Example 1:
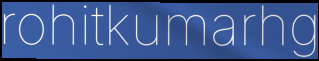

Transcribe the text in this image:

rohitkumarhg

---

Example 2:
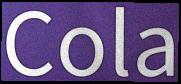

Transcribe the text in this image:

Cola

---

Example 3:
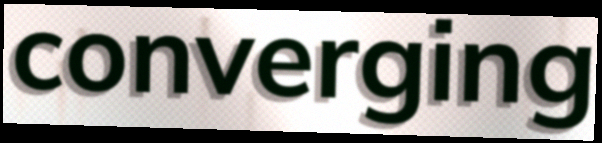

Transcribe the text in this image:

converging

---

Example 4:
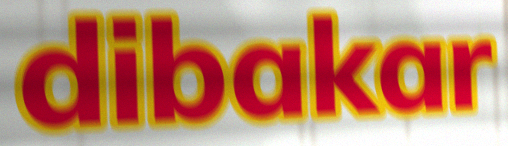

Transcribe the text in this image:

dibakar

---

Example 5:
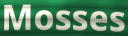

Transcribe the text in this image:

Mosses